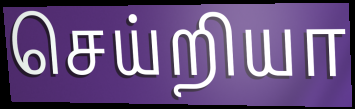
செய்றியா